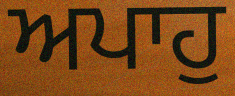
ਅਪਾਹੁ